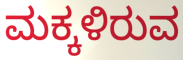
ಮಕ್ಕಳಿರುವ